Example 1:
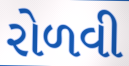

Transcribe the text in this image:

રોળવી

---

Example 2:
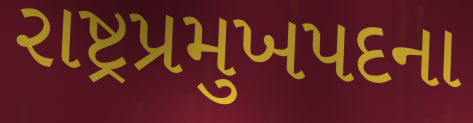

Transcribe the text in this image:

રાષ્ટ્રપ્રમુખપદના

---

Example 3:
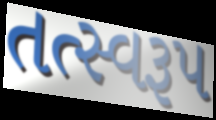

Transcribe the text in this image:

તત્સ્વરૂપ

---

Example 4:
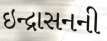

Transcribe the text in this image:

ઇન્દ્રાસનની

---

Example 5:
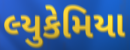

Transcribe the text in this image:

લ્યુકેમિયા